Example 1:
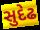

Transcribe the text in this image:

સુદેઢ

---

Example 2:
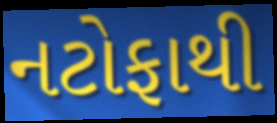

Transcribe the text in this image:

નટોફાથી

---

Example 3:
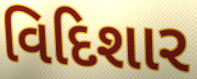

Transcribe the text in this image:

વિદિશાર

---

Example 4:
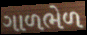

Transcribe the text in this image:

ગાળભેળ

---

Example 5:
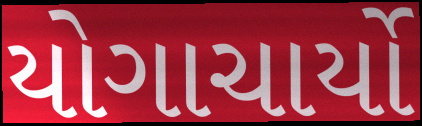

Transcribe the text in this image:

યોગાચાર્યો